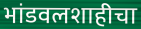
भांडवलशाहीचा